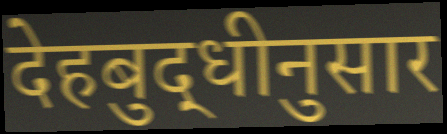
देहबुद्धीनुसार